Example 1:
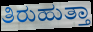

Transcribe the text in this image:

ತಿರುಹುತ್ತಾ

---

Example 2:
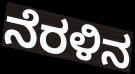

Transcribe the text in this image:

ನೆರಳಿನ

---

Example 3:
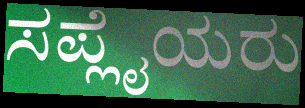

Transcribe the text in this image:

ಸಪ್ಲೈಯರು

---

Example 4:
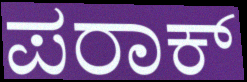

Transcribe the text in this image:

ಪರಾಕ್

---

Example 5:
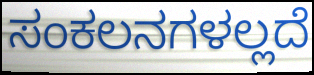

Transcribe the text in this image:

ಸಂಕಲನಗಳಲ್ಲದೆ